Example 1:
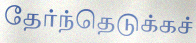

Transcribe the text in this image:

தேர்ந்தெடுக்கச்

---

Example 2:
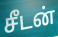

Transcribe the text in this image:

சீடன்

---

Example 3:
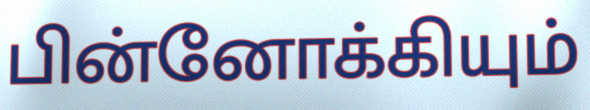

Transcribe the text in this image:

பின்னோக்கியும்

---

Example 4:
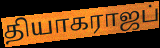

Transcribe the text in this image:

தியாகராஜப்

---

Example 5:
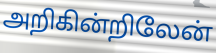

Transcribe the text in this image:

அறிகின்றிலேன்